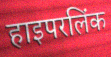
हाइपरलिंक